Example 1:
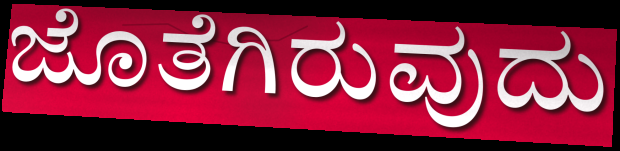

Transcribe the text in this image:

ಜೊತೆಗಿರುವುದು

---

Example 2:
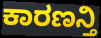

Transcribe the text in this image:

ಕಾರಣನ್ತಿ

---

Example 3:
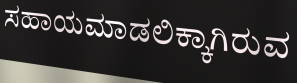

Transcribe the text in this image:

ಸಹಾಯಮಾಡಲಿಕ್ಕಾಗಿರುವ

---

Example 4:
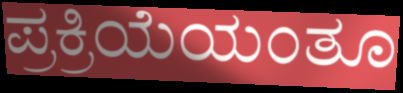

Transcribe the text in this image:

ಪ್ರಕ್ರಿಯೆಯಂತೂ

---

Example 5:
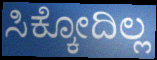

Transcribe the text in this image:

ಸಿಕ್ಕೋದಿಲ್ಲ